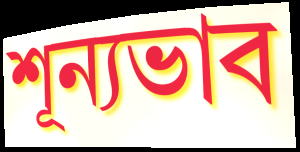
শূন্যভাব